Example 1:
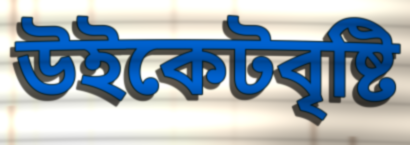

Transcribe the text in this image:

উইকেটবৃষ্টি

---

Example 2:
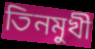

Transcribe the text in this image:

তিনমুখী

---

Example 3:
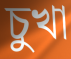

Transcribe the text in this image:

চুখা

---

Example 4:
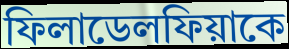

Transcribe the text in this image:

ফিলাডেলফিয়াকে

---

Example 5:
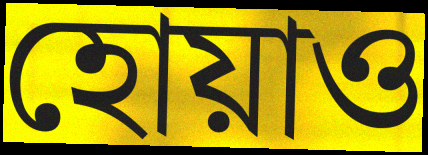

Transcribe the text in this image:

হোয়াও